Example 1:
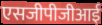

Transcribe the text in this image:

एसजीपीजीआई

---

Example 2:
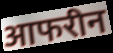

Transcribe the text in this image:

आफरीन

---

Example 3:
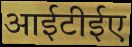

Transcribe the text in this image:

आईटीईए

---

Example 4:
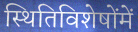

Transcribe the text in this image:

स्थितिविशेषोंमें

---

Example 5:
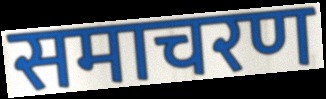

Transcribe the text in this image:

समाचरण